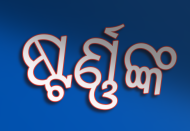
ଷ୍ଟର୍ଣ୍ଣଙ୍କ